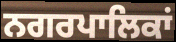
ਨਗਰਪਾਲਿਕਾਂ